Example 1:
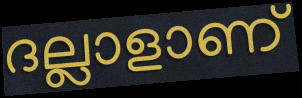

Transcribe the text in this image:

ദല്ലാളാണ്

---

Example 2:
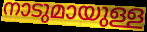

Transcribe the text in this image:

നാടുമായുള്ള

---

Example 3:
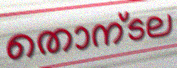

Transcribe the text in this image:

തൊന്ടല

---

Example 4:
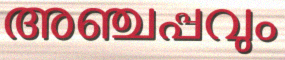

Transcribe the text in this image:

അഞ്ചപ്പവും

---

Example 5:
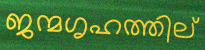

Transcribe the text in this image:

ജന്മഗൃഹത്തില്